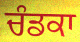
ਚੰਡਕਾ